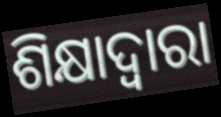
ଶିକ୍ଷାଦ୍ୱାରା